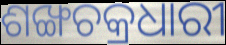
ଶଙ୍ଖଚକ୍ରଧାରୀ